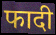
फादी